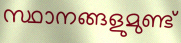
സ്ഥാനങ്ങളുമുണ്ട്